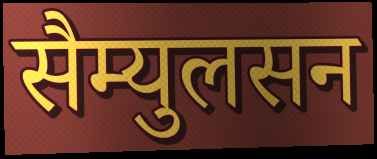
सैम्युलसन